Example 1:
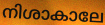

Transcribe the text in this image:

നിശാകാലേ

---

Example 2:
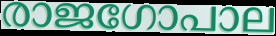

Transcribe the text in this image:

രാജഗോപാല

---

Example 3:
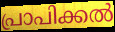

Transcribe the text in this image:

പ്രാപിക്കൽ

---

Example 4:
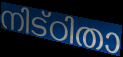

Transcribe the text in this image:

നിട്ഠിതാ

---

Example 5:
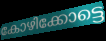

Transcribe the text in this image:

കോഴിക്കോട്ടെ